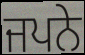
ਜਪਨੇ